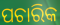
ପଚାରିକ